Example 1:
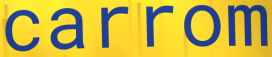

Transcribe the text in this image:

carrom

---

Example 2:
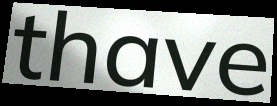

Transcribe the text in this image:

thave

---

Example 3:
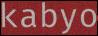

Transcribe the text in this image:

kabyo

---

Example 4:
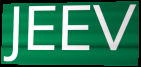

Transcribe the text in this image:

JEEV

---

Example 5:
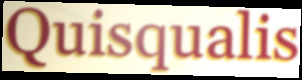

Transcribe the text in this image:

Quisqualis